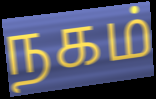
நகம்